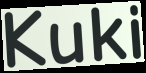
Kuki